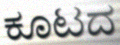
ಕೂಟದ